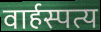
वार्हस्पत्य